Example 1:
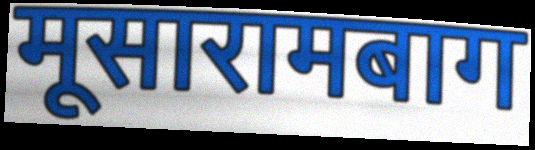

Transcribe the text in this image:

मूसारामबाग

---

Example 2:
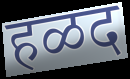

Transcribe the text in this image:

हळद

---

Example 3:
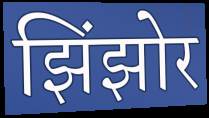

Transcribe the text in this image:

झिंझोर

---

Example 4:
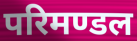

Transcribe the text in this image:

परिमण्डल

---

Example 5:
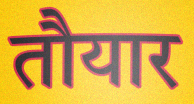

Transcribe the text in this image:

तौयार